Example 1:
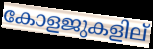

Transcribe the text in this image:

കോളജുകളില്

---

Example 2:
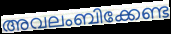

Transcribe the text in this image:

അവലംബിക്കേണ്ട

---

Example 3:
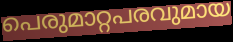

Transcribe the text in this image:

പെരുമാറ്റപരവുമായ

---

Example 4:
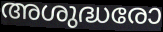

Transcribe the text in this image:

അശുദ്ധരോ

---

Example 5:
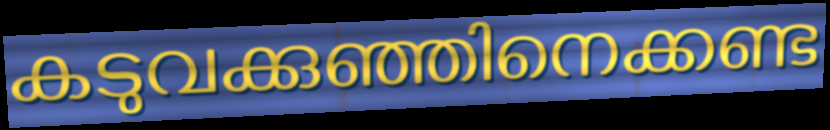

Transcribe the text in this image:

കടുവക്കുഞ്ഞിനെക്കണ്ട